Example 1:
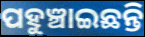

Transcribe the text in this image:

ପହୁଞ୍ଚାଇଛନ୍ତି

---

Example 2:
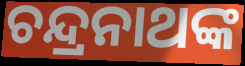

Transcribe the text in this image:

ଚନ୍ଦ୍ରନାଥଙ୍କ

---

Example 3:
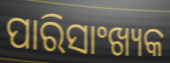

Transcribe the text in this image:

ପାରିସାଂଖ୍ୟକ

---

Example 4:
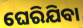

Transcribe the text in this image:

ଘେରିଯିବା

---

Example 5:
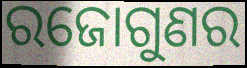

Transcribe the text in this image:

ରଜୋଗୁଣର